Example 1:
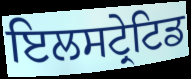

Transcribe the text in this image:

ਇਲਸਟ੍ਰੇਟਿਡ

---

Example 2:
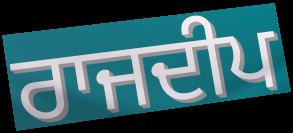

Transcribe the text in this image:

ਰਾਜਦੀਪ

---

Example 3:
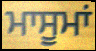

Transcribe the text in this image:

ਮਾਸੂਮਾਂ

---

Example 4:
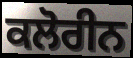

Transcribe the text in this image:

ਕਲੋਰੀਨ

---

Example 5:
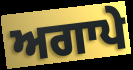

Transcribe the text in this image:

ਅਗਾਪੇ